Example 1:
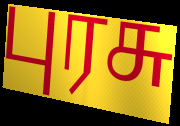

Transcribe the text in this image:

புரசு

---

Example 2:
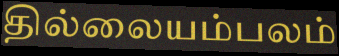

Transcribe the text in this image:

தில்லையம்பலம்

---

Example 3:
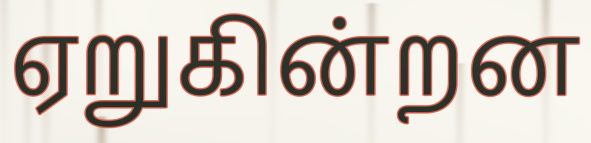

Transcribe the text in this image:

ஏறுகின்றன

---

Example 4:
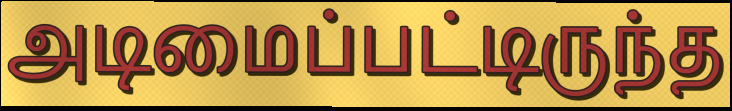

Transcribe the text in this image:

அடிமைப்பட்டிருந்த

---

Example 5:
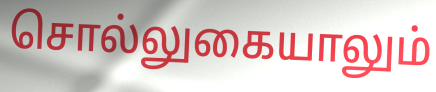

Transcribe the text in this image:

சொல்லுகையாலும்